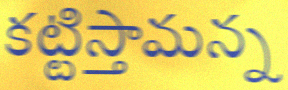
కట్టిస్తామన్న